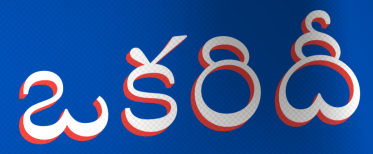
ఒకరిదీ